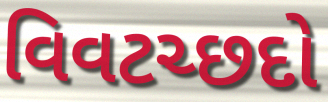
વિવટચ્છદો